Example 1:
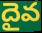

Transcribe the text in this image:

దైవ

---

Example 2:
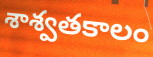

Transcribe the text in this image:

శాశ్వతకాలం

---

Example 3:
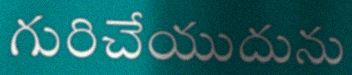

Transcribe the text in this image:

గురిచేయుదును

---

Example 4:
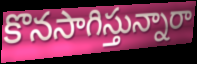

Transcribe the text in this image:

కొనసాగిస్తున్నారా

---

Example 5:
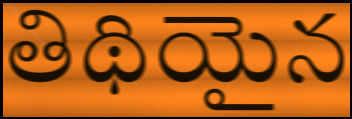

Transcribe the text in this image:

తిథియైన